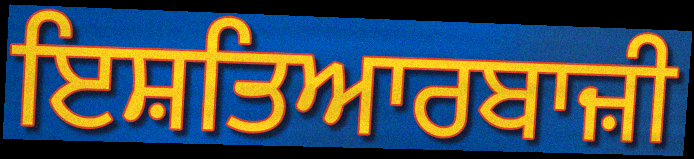
ਇਸ਼ਤਿਆਰਬਾਜ਼ੀ